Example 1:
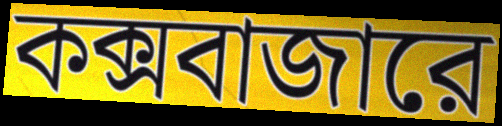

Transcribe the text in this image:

কক্সবাজারে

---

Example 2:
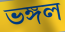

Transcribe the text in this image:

ভঙ্গল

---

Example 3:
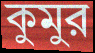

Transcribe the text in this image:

কুমুর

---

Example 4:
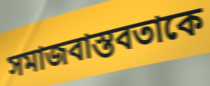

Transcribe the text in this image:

সমাজবাস্তবতাকে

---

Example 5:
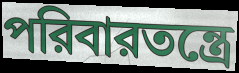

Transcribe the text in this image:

পরিবারতন্ত্রে